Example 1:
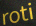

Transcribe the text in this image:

roti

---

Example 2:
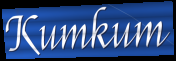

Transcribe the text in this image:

Kumkum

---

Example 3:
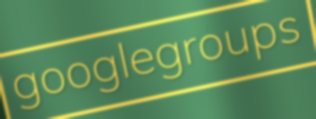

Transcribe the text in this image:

googlegroups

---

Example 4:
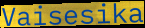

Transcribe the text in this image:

Vaisesika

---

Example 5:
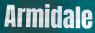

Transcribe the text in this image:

Armidale